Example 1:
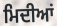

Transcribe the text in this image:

ਮਿਦੀਆਂ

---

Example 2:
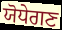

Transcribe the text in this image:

ਯੋਧੇਗਣ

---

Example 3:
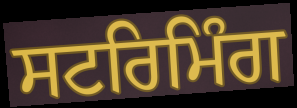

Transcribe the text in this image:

ਸਟਰਿਮਿੰਗ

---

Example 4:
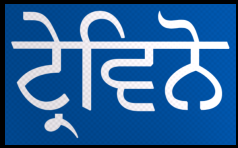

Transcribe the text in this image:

ਟ੍ਰੇਵਿਨੋ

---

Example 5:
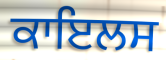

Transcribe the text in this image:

ਕਾਇਲਸ